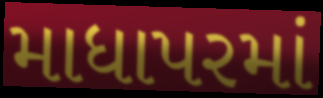
માધાપરમાં